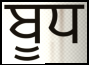
ਬੂਧ